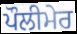
ਪੌਲੀਮੇਰ